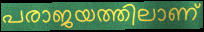
പരാജയത്തിലാണ്